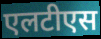
एलटीएस